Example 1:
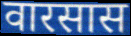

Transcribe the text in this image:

वारसास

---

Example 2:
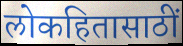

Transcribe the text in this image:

लोकहितासाठीं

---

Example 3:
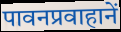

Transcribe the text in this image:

पावनप्रवाहानें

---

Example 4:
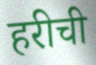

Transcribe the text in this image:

हरीची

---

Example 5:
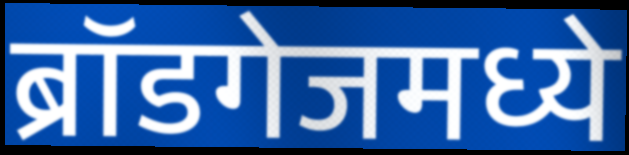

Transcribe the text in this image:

ब्रॉडगेजमध्ये